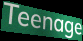
Teenage